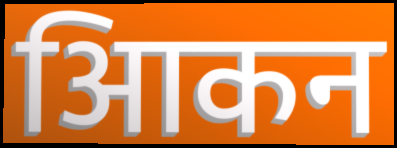
आिकन